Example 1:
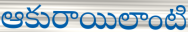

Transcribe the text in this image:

ఆకురాయిలాంటి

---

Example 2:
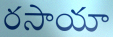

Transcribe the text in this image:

రసాయా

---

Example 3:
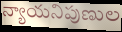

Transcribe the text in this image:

న్యాయనిపుణుల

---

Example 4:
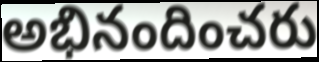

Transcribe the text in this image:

అభినందించరు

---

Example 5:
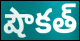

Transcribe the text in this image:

షౌకత్